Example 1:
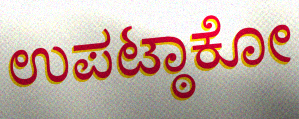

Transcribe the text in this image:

ಉಪಟ್ಠಾಕೋ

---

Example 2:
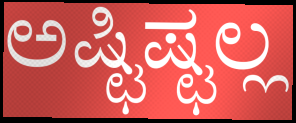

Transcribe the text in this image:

ಅಷ್ಟಿಷ್ಟಲ್ಲ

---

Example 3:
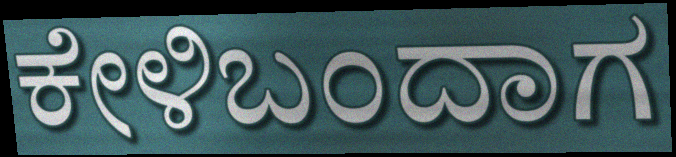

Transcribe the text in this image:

ಕೇಳಿಬಂದಾಗ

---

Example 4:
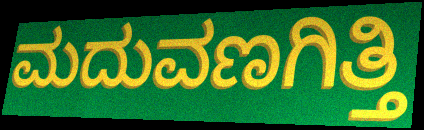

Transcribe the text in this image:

ಮದುವಣಗಿತ್ತಿ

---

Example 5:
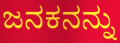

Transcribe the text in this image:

ಜನಕನನ್ನು